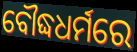
ବୌଦ୍ଧଧର୍ମରେ